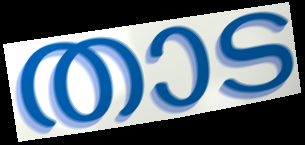
താട